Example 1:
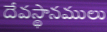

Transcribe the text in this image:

దేవస్థానములు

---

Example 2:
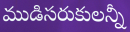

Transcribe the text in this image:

ముడిసరుకులన్నీ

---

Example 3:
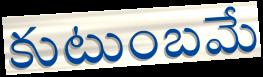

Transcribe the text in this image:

కుటుంబమే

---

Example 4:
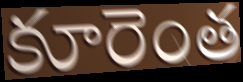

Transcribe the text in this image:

కూరెంత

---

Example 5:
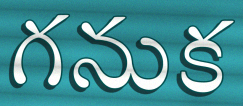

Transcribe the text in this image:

గనుక